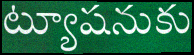
ట్యూషనుకు